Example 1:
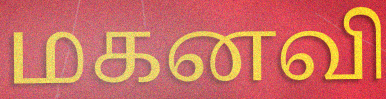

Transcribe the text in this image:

மகனவி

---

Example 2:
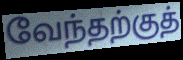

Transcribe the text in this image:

வேந்தற்குத்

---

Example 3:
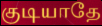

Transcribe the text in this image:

குடியாதே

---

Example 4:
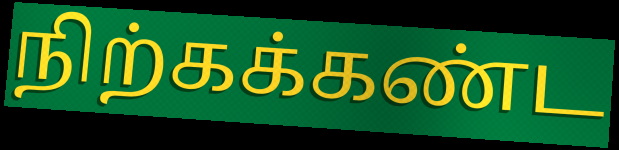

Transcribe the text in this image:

நிற்கக்கண்ட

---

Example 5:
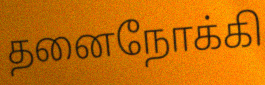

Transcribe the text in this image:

தனைநோக்கி